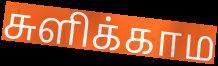
சுளிக்காம